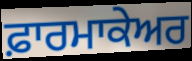
ਫ਼ਾਰਮਾਕੇਅਰ